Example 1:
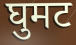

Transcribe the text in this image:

घुमट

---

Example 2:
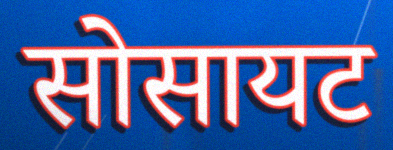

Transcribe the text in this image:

सोसायट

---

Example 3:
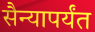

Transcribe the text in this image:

सैन्यापर्यंत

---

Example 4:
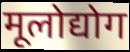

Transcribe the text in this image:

मूलोद्योग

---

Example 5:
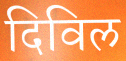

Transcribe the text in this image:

दिविल